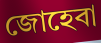
জোহেবা